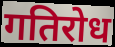
गतिरोध